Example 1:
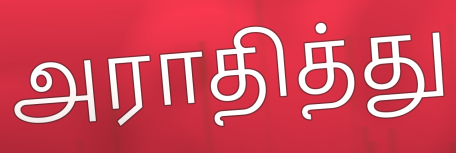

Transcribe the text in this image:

அராதித்து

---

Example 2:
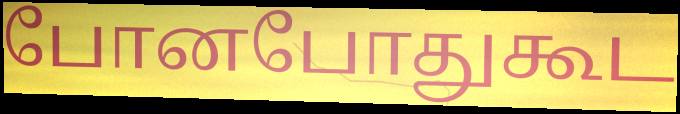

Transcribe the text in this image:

போனபோதுகூட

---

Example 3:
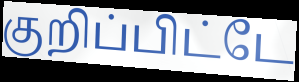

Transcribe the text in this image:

குறிப்பிட்டே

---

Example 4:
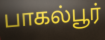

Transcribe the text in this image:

பாகல்பூர்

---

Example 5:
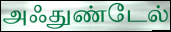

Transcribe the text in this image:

அஃதுண்டேல்